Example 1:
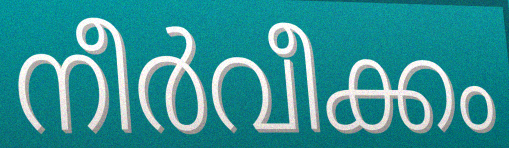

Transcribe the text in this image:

നീർവീക്കം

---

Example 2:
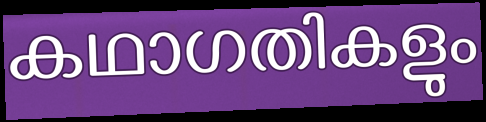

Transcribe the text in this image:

കഥാഗതികളും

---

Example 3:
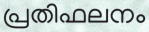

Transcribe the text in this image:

പ്രതിഫലനം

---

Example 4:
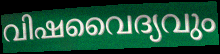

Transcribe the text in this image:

വിഷവൈദ്യവും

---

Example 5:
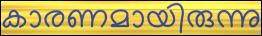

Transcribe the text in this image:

കാരണമായിരുന്നു